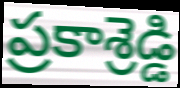
ప్రకాశ్రెడ్డి